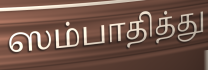
ஸம்பாதித்து